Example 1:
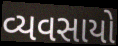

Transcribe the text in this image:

વ્યવસાયો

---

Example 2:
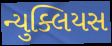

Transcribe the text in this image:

ન્યુક્લિયસ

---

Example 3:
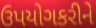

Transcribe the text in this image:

ઉપયોગકરીને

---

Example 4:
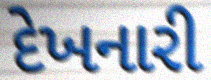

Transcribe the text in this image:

દેખનારી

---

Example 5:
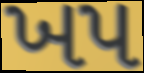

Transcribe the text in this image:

ખપ